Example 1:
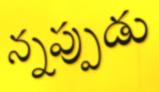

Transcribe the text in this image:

న్నప్పుడు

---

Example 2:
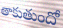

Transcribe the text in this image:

తాకుతుందో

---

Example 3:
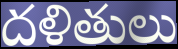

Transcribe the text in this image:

దళితులు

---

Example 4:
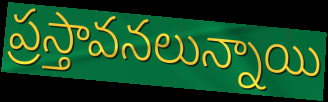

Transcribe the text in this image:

ప్రస్తావనలున్నాయి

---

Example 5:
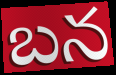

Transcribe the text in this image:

బన